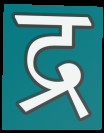
द्र